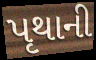
પૃથાની